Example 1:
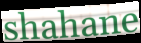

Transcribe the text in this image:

shahane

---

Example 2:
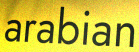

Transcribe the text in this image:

arabian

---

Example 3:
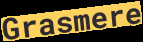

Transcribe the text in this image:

Grasmere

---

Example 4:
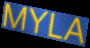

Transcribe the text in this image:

MYLA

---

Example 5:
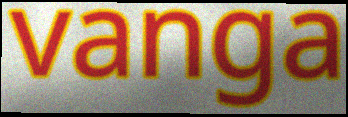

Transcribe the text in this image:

vanga